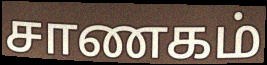
சாணகம்